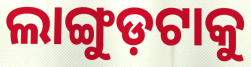
ଲାଙ୍ଗୁଡ଼ଟାକୁ